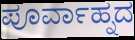
ಪೂರ್ವಾಹ್ನದ